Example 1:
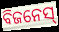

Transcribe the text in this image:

ବିଜନେସ୍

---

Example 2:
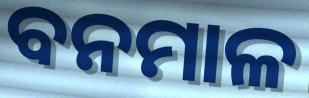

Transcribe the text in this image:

ବନମାଳ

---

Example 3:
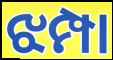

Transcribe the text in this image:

ଝମ୍ପା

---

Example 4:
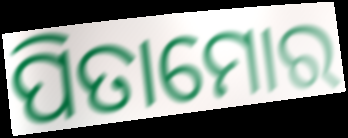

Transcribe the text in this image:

ପିତାମୋର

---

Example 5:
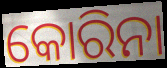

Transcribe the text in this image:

କୋରିନା